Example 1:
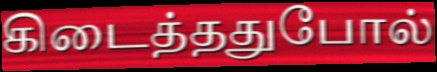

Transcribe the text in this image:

கிடைத்ததுபோல்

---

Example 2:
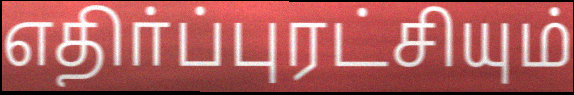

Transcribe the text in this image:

எதிர்ப்புரட்சியும்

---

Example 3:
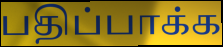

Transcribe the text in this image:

பதிப்பாக்க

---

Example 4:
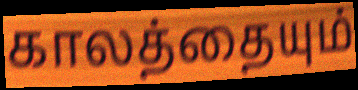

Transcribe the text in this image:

காலத்தையும்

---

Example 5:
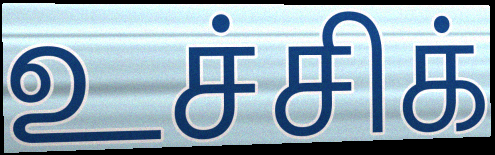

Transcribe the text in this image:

உச்சிக்